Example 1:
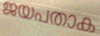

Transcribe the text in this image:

ജയപതാക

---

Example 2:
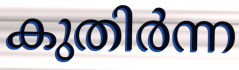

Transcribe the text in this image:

കുതിർന്ന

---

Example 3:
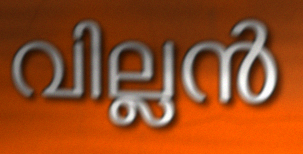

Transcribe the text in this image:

വില്ലൻ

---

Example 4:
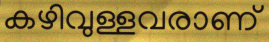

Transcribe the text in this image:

കഴിവുള്ളവരാണ്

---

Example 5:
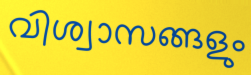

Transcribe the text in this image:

വിശ്വാസങ്ങളും